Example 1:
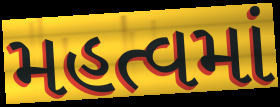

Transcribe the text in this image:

મહત્વમાં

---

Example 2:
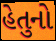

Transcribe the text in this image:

હેતુનો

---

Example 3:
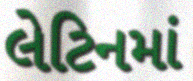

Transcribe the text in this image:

લેટિનમાં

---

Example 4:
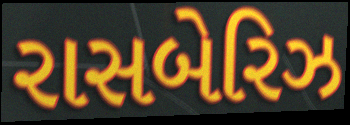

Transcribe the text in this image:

રાસબેરિઝ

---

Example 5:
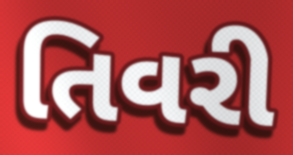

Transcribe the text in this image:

તિવરી